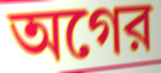
অগের